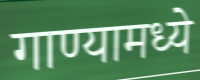
गाण्यामध्ये